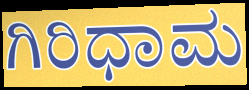
ಗಿರಿಧಾಮ